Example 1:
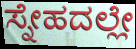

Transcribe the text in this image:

ಸ್ನೇಹದಲ್ಲೇ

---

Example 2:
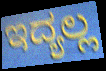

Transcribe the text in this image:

ಇದ್ಯಲ್ಲ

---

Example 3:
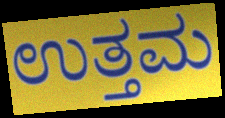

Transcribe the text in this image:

ಉತ್ತಮ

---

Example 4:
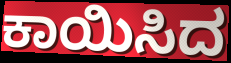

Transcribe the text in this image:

ಕಾಯಿಸಿದ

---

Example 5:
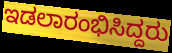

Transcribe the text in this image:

ಇಡಲಾರಂಭಿಸಿದ್ದರು